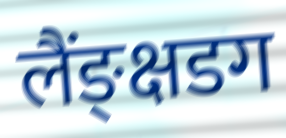
लैंङ्क्षडग